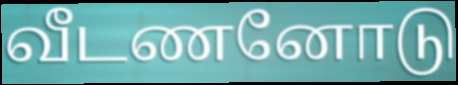
வீடணனோடு